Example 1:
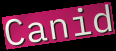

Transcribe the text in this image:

Canid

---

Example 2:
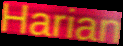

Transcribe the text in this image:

Harian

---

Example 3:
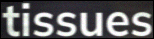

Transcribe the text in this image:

tissues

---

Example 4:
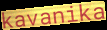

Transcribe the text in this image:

kavanika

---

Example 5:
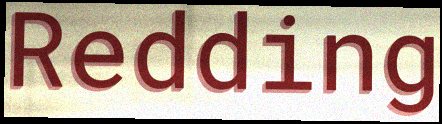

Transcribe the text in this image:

Redding